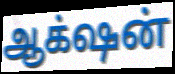
ஆக்‌ஷன்